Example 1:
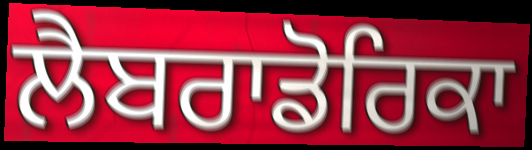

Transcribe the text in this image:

ਲੈਬਰਾਡੋਰਿਕਾ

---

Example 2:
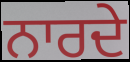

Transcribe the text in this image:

ਨਾਰਦੇ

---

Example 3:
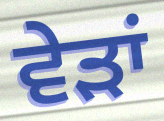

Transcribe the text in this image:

ਵੇੜਾਂ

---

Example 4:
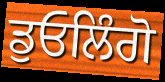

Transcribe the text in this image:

ਡੁਓਲਿੰਗੋ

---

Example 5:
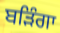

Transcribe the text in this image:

ਬੜਿੰਗਾ